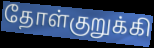
தோள்குறுக்கி